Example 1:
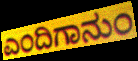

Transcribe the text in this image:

ಎಂದಿಗಾನುಂ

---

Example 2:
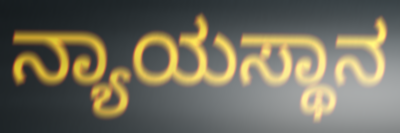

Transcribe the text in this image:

ನ್ಯಾಯಸ್ಥಾನ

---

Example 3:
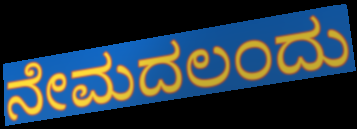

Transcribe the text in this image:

ನೇಮದಲಂದು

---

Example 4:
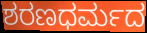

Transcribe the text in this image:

ಶರಣಧರ್ಮದ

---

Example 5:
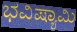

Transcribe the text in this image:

ಭವಿಷ್ಯಾಮಿ